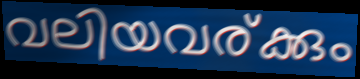
വലിയവര്ക്കും